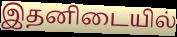
இதனிடையில்